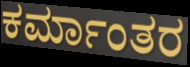
ಕರ್ಮಾಂತರ